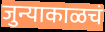
जुन्याकाळचं